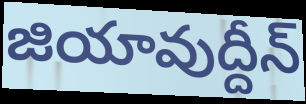
జియావుద్దీన్